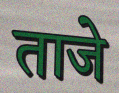
ताजे